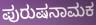
ಪುರುಷನಾಮಕ